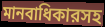
মানবাধিকারসহ